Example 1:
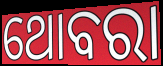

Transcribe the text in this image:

ଥୋବରା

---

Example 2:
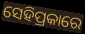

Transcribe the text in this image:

ସେହିପ୍ରକାରେ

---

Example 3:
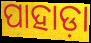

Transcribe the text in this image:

ପାହାଡ଼ା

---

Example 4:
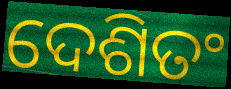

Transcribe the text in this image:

ଦେଶିତଂ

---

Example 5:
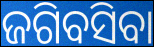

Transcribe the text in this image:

ଜଗିବସିବା